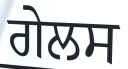
ਗੇਲਸ